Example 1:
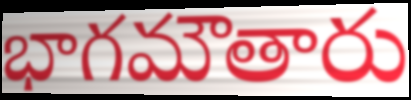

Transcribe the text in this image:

భాగమౌతారు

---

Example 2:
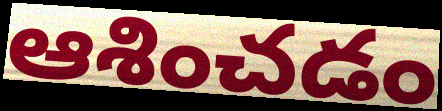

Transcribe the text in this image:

ఆశించడం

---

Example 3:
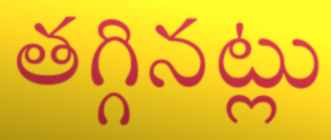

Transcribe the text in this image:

తగ్గినట్లు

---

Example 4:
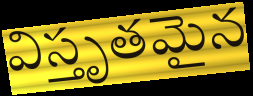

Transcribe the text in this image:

విస్తృతమైన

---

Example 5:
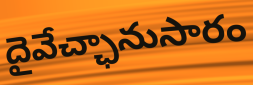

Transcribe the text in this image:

దైవేచ్ఛానుసారం